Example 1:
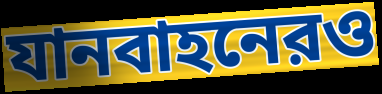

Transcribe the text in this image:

যানবাহনেরও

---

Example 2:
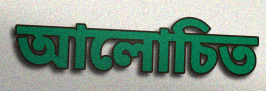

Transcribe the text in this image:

আলোচিত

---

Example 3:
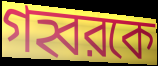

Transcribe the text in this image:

গহ্বরকে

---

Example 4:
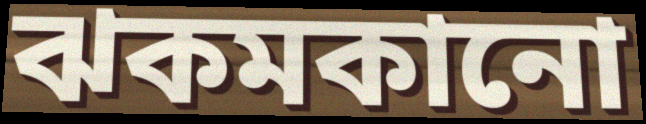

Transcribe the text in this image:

ঝকমকানো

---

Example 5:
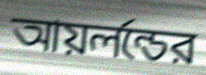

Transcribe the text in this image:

আয়র্লন্ডের